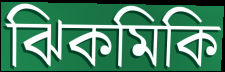
ঝিকমিকি